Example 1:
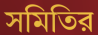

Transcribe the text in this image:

সমিতির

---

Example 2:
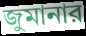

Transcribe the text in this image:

জুমানার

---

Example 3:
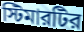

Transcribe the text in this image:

স্টিমারটির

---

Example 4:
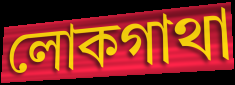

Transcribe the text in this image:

লোকগাথা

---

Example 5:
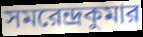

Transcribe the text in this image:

সমরেন্দ্রকুমার